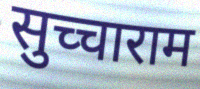
सुच्चाराम